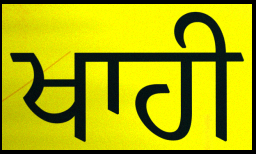
ਖਾਹੀ